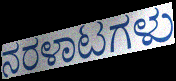
ನರಳಾಟಗಳು